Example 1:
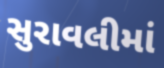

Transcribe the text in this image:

સુરાવલીમાં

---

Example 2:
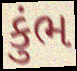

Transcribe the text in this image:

કુંભ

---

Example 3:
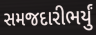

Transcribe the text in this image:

સમજદારીભર્યું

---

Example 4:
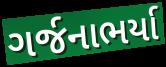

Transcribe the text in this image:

ગર્જનાભર્યા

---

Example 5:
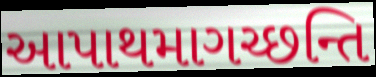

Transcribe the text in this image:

આપાથમાગચ્છન્તિ